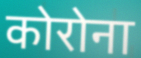
कोरोना